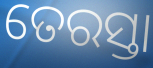
ତେରସ୍ତା